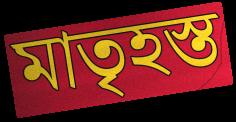
মাতৃহস্ত